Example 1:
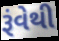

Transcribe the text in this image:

રૂંવેથી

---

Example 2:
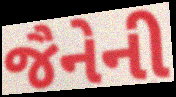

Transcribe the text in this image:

જૈનેની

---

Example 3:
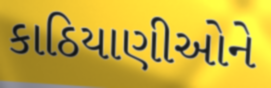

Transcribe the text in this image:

કાઠિયાણીઓને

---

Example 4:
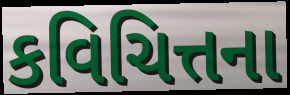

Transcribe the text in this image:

કવિચિત્તના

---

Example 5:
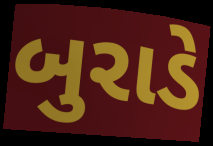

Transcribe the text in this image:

બુરાડે